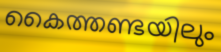
കൈത്തണ്ടയിലും